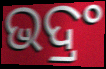
ଭଦ୍ରଂ